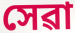
সেৱা